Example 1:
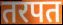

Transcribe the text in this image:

तरपत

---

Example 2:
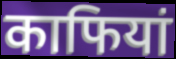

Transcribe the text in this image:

काफियां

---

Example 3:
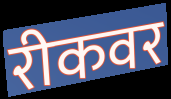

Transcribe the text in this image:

रीकवर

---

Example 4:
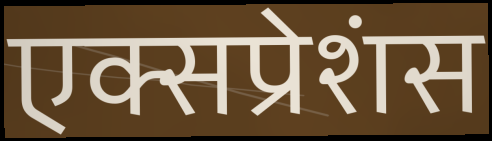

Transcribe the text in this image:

एक्सप्रेशंस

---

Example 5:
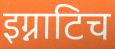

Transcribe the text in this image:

इग्नाटिच